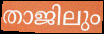
താജിലും